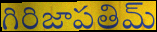
గిరిజాపతిమ్